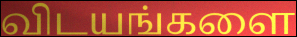
விடயங்களை